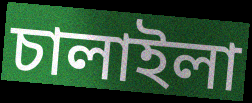
চালাইলা